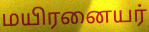
மயிரனையர்